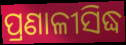
ପ୍ରଣାଳୀସିଦ୍ଧ